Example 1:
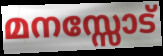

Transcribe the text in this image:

മനസ്സോട്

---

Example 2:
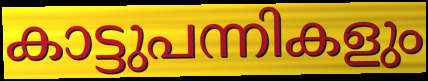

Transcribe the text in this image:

കാട്ടുപന്നികളും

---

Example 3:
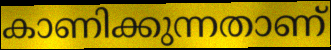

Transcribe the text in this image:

കാണിക്കുന്നതാണ്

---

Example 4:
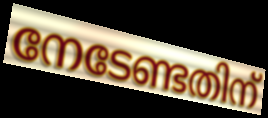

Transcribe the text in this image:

നേടേണ്ടതിന്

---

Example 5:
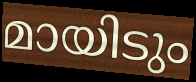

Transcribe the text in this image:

മായിടും